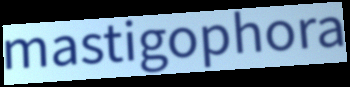
mastigophora